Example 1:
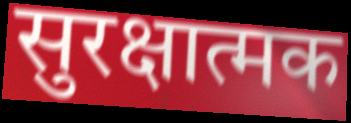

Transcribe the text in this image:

सुरक्षात्मक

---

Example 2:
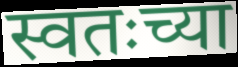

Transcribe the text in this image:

स्वतःच्या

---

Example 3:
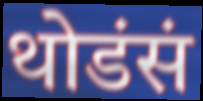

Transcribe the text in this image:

थोडंसं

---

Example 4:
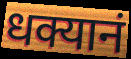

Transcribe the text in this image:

धक्यानं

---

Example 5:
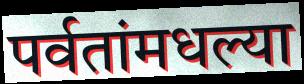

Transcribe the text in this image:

पर्वतांमधल्या